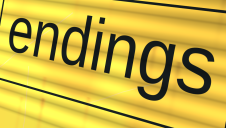
endings